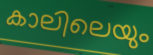
കാലിലെയും